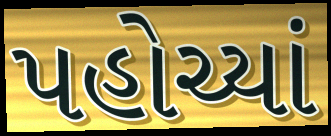
પહોચ્યાં